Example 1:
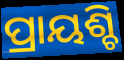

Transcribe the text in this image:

ପ୍ରାୟଶ୍ଚି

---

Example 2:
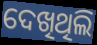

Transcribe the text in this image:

ଦେଖିଥିଲି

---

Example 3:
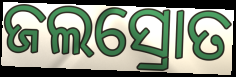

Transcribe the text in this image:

ଜଲସ୍ରୋତ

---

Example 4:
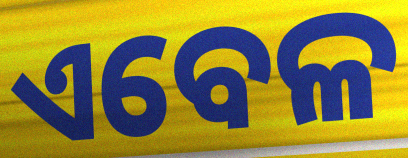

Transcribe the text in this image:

ଏବେଳ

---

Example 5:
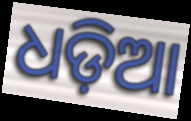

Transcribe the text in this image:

ଧଡ଼ିଆ